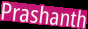
Prashanth